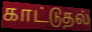
காட்டுதல்